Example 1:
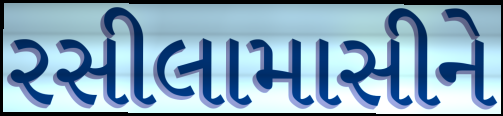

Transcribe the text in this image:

રસીલામાસીને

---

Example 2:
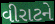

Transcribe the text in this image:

વીરાટને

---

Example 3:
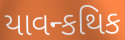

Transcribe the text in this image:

યાવન્કથિક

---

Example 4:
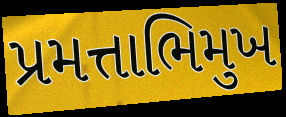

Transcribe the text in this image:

પ્રમત્તાભિમુખ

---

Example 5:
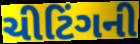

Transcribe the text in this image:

ચીટિંગની